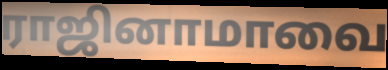
ராஜினாமாவை